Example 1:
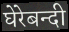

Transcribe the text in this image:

घेरेबन्दी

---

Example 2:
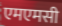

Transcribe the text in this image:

एमएमसी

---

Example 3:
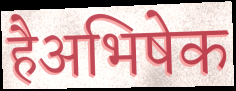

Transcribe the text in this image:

हैअभिषेक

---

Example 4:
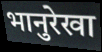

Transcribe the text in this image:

भानुरेखा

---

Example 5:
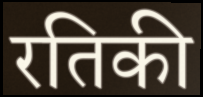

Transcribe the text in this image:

रतिकी